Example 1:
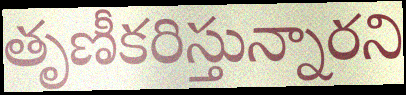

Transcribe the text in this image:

తృణీకరిస్తున్నారని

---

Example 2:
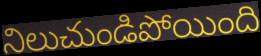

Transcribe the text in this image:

నిలుచుండిపోయింది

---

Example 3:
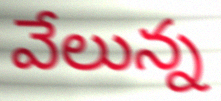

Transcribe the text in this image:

వేలున్న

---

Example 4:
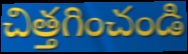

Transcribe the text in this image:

చిత్తగించండి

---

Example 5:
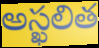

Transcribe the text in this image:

అస్ఖలిత